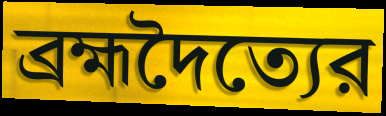
ব্রহ্মদৈত্যের